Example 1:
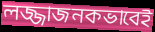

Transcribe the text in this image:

লজ্জাজনকভাবেই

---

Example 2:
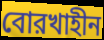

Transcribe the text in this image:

বোরখাহীন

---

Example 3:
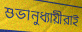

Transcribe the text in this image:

শুভানুধ্যায়ীরাই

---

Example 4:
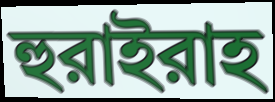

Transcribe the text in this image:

হুরাইরাহ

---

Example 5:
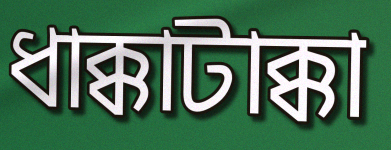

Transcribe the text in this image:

ধাক্কাটাক্কা